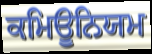
ਕਮਿਊਨਿਯਮ